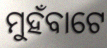
ମୁହଁବାଟେ